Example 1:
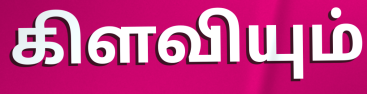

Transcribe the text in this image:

கிளவியும்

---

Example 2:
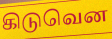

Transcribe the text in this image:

கிடுவென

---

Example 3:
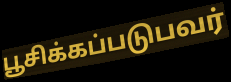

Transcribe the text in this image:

பூசிக்கப்படுபவர்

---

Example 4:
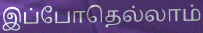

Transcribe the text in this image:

இப்போதெல்லாம்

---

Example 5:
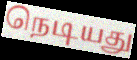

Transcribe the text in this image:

நெடியது